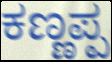
ಕಣ್ಣಪ್ಪ